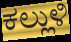
ಕಲ್ಲುಳಿ